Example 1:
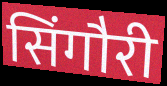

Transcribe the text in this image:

सिंगौरी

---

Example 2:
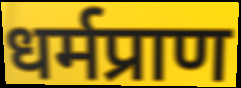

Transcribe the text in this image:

धर्मप्राण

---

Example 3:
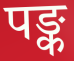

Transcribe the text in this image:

पङ्क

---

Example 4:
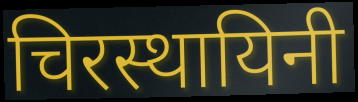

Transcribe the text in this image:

चिरस्थायिनी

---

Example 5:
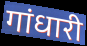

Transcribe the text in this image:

गांधारी